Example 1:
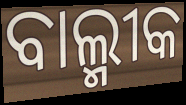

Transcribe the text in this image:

ବାଲ୍ମୀକ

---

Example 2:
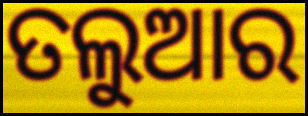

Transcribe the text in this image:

ତଲୁଆର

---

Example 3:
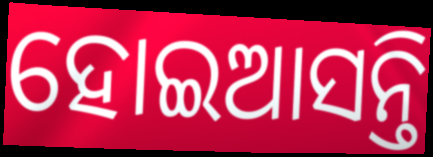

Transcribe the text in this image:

ହୋଇଆସନ୍ତି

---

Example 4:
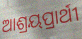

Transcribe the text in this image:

ଆଶ୍ରୟପ୍ରାର୍ଥୀ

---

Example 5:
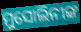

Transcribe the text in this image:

ମୁସୋଲିନୀଙ୍କ